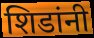
शिडांनी